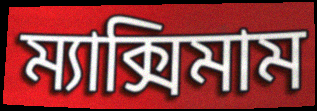
ম্যাক্সিমাম